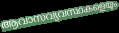
ആവാസവ്യവസ്ഥകളെയും